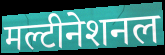
मल्टीनेशनल